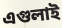
এগুলাই